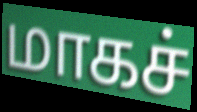
மாகச்